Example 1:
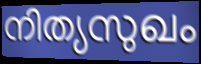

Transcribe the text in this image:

നിത്യസുഖം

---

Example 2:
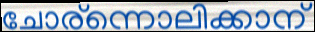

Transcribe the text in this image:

ചോര്ന്നൊലിക്കാന്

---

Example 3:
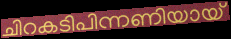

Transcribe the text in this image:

ചിറകടിപിന്നണിയായ്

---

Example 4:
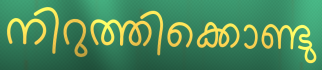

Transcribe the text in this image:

നിറുത്തിക്കൊണ്ടു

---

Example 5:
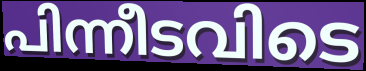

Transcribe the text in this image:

പിന്നീടവിടെ